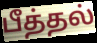
பீத்தல்